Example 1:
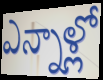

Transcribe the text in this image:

ఎన్నాళ్లో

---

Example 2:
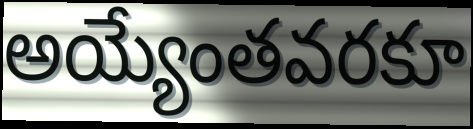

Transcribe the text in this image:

అయ్యేంతవరకూ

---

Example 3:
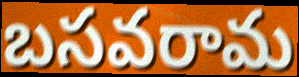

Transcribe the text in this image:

బసవరామ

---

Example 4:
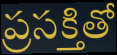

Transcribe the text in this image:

ప్రసక్తితో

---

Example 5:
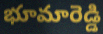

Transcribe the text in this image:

భూమారెడ్డి